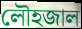
লৌহজাল